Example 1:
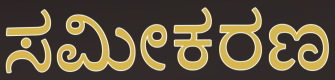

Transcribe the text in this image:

ಸಮೀಕರಣ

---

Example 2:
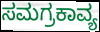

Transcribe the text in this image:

ಸಮಗ್ರಕಾವ್ಯ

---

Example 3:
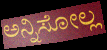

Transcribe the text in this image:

ಅನ್ನಿಸೋಲ್ಲ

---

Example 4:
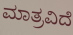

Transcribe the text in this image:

ಮಾತ್ರವಿದೆ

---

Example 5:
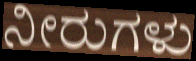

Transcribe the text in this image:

ನೀರುಗಳು